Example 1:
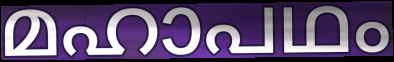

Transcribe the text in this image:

മഹാപഥം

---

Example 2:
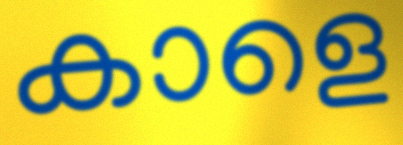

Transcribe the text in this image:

കാളെ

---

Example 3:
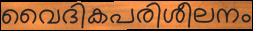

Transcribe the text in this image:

വൈദികപരിശീലനം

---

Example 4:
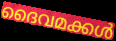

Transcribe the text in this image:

ദൈവമക്കൾ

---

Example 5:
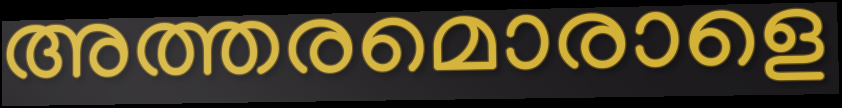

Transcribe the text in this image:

അത്തരമൊരാളെ